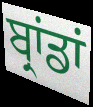
ਬ੍ਰਾਂਡਾਂ